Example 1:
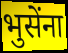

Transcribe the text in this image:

भुसेंना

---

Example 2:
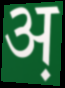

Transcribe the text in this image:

अ़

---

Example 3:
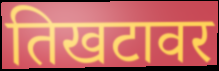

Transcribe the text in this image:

तिखटावर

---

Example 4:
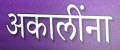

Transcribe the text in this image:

अकालींना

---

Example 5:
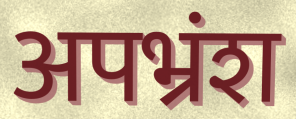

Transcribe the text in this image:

अपभ्रंश